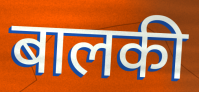
बालकी